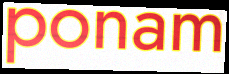
ponam